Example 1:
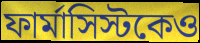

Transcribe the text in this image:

ফার্মাসিস্টকেও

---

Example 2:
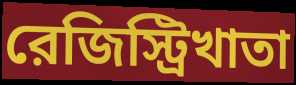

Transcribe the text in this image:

রেজিস্ট্রিখাতা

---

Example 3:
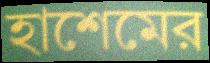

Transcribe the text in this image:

হাশেমের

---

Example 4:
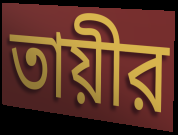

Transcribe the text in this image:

তায়ীর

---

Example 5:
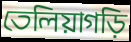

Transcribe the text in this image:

তেলিয়াগড়ি